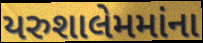
યરુશાલેમમાંના